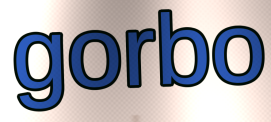
gorbo